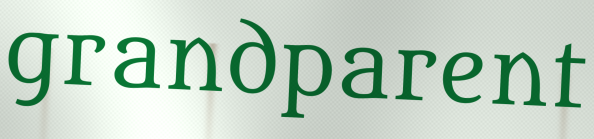
grandparent